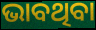
ଭାବଥିବା